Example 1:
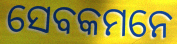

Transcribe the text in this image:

ସେବକମନେ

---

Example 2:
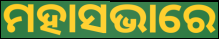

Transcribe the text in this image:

ମହାସଭାରେ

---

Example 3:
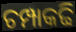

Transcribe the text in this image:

ଚମ୍ପାକଢି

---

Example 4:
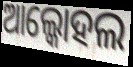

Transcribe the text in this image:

ଆଲ୍କୋହଲ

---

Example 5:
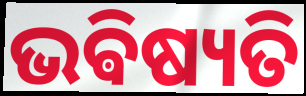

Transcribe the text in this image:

ଭଵିଷ୍ୟତି